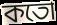
কতো